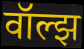
वॉल्झ